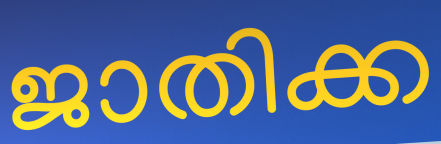
ജാതിക്ക